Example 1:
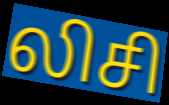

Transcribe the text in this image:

லிசி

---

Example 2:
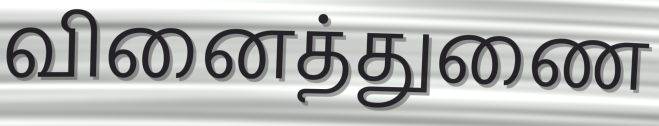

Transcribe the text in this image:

வினைத்துணை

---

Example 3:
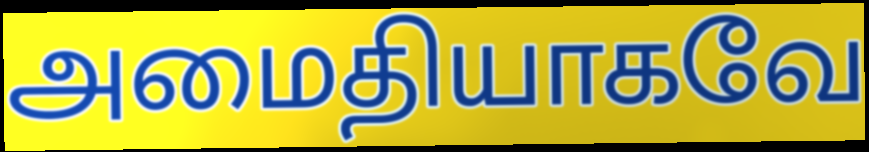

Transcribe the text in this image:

அமைதியாகவே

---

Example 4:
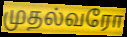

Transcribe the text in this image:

முதல்வரோ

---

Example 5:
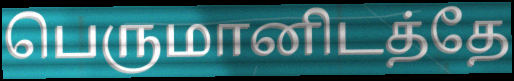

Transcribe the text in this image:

பெருமானிடத்தே